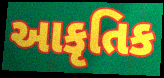
આકૃતિક